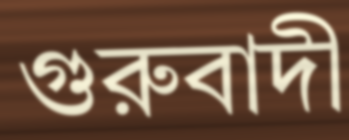
গুরুবাদী